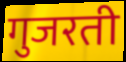
गुजरती